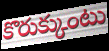
కొరుక్కుంటు